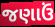
જણાઉં